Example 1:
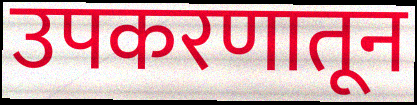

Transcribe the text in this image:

उपकरणातून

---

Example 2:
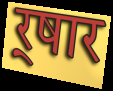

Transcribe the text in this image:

र्षार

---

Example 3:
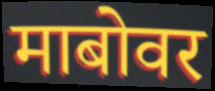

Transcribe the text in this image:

माबोवर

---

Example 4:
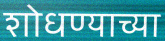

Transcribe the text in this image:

शोधण्याच्या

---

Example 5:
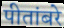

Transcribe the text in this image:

पीतांबरे